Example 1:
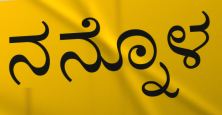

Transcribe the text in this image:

ನನ್ನೊಳ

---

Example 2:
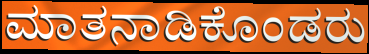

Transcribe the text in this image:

ಮಾತನಾಡಿಕೊಂಡರು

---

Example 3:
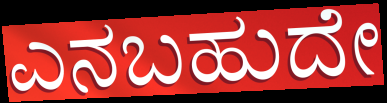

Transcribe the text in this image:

ಎನಬಹುದೇ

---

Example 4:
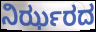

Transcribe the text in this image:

ನಿರ್ಝರದ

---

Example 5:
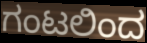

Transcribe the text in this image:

ಗಂಟಲಿಂದ